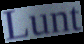
Lunt